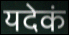
यदेकं